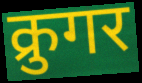
क्रुगर